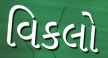
વિકલો